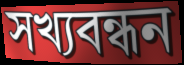
সখ্যবন্ধন